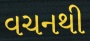
વચનથી